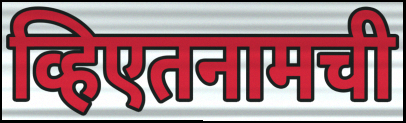
व्हिएतनामची